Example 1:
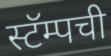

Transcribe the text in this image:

स्टॅम्पची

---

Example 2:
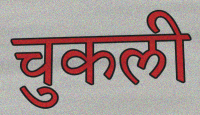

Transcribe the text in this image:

चुकली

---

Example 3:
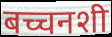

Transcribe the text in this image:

बच्चनशी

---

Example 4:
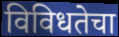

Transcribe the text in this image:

विविधतेचा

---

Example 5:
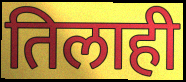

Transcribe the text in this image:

तिलाही